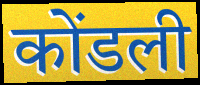
कोंडली